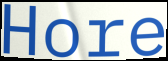
Hore